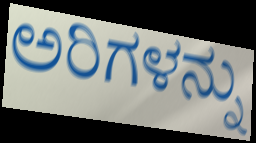
ಅರಿಗಳನ್ನು